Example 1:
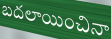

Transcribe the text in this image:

బదలాయించినా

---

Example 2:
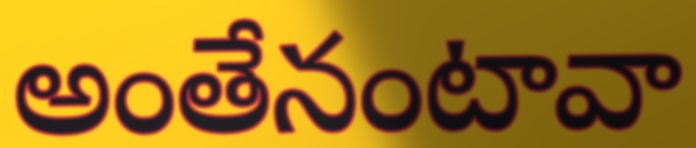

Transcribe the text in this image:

అంతేనంటావా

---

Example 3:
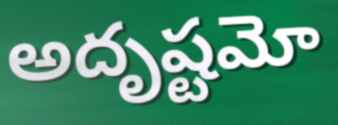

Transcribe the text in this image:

అదృష్టమో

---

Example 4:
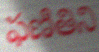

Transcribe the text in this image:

ఫణితిని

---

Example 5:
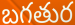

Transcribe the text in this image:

బగతుర